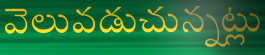
వెలువడుచున్నట్లు